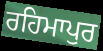
ਰਹਿਮਾਪੁਰ